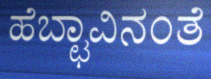
ಹೆಬ್ಟಾವಿನಂತೆ